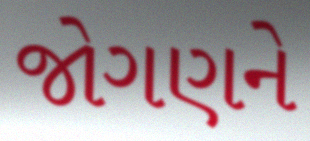
જોગણને